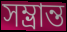
সম্ভ্রান্ত